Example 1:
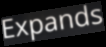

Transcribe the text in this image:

Expands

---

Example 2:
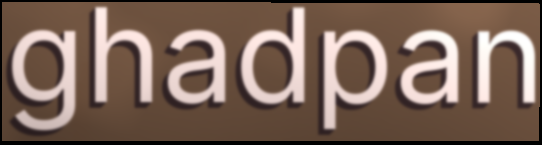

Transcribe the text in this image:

ghadpan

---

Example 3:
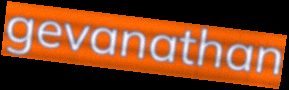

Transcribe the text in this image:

gevanathan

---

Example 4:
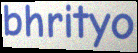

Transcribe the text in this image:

bhrityo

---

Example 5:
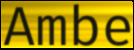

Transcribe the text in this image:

Ambe